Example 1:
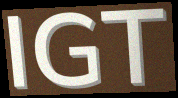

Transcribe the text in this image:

IGT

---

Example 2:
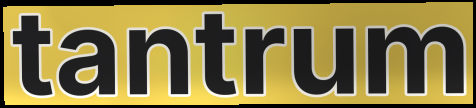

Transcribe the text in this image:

tantrum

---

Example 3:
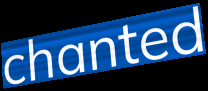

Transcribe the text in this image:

chanted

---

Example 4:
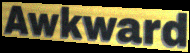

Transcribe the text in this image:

Awkward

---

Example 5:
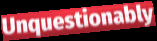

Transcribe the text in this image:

Unquestionably